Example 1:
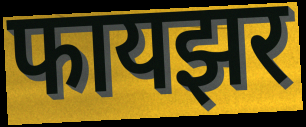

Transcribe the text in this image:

फायझर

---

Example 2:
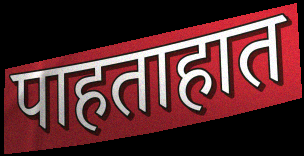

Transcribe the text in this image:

पाहताहात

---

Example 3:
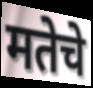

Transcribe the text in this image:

मतेचे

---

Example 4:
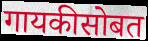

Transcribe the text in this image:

गायकीसोबत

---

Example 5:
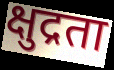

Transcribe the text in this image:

क्षुद्रता